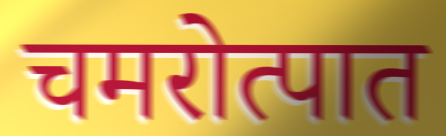
चमरोत्पात